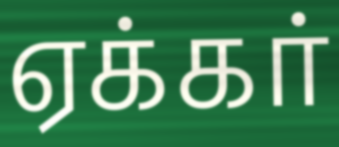
ஏக்கர்